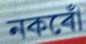
নকৰোঁ